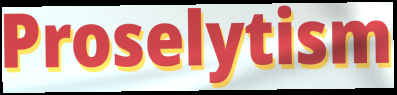
Proselytism